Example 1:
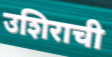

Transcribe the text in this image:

उशिराची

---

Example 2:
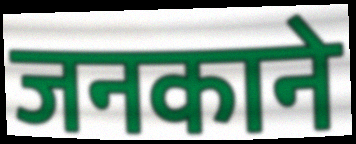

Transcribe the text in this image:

जनकाने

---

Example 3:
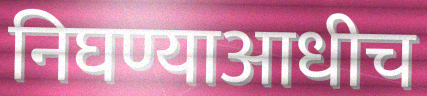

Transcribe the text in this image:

निघण्याआधीच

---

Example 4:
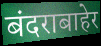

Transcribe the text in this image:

बंदराबाहेर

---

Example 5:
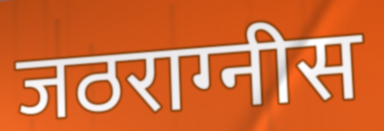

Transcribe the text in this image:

जठराग्नीस